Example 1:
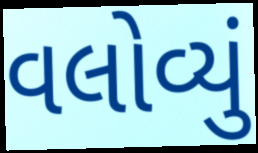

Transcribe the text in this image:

વલોવ્યું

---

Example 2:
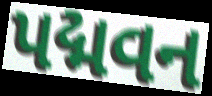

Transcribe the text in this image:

પદ્મવન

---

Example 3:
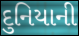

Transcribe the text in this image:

દુનિયાની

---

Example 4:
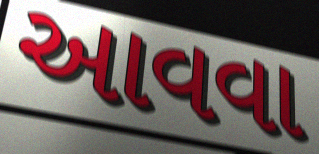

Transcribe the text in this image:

આવવા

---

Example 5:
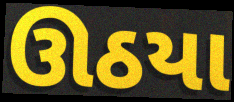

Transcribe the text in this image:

ઊઠયા